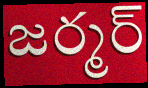
జర్మర్